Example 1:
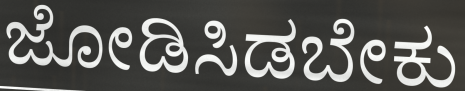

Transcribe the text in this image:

ಜೋಡಿಸಿಡಬೇಕು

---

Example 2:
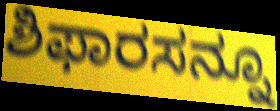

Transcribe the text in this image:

ಶಿಫಾರಸನ್ನೂ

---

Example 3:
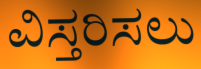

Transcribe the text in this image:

ವಿಸ್ತರಿಸಲು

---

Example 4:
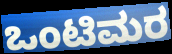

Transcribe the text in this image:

ಒಂಟಿಮರ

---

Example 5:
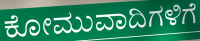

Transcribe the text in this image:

ಕೋಮುವಾದಿಗಳಿಗೆ